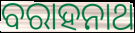
ବରାହନାଥ